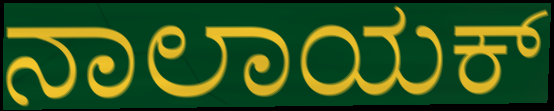
ನಾಲಾಯಕ್